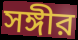
সঙ্গীর